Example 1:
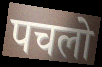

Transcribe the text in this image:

पचलो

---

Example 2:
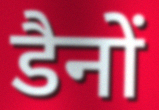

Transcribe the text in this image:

डैनों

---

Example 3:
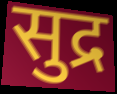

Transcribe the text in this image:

सुद्र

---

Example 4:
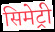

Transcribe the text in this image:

सिमेट्री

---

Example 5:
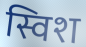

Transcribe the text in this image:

स्विश